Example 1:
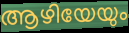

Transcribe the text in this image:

ആഴിയേയും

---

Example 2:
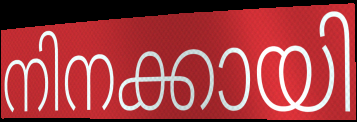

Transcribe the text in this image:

നിനക്കായി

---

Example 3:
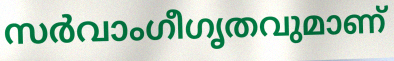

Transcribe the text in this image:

സർവാംഗീഗൃതവുമാണ്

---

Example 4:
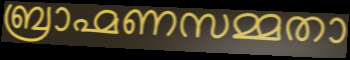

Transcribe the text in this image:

ബ്രാഹ്മണസമ്മതാ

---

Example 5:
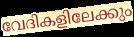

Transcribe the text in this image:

വേദികളിലേക്കും